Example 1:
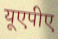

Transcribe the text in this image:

यूएपीए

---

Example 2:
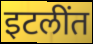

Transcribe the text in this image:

इटलींत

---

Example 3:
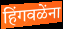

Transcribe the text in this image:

हिंगवळेंना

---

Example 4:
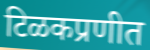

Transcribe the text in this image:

टिळकप्रणीत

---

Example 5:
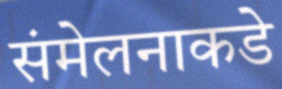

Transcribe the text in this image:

संमेलनाकडे